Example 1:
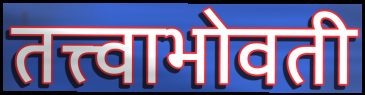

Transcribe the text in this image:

तत्त्वाभोवती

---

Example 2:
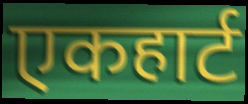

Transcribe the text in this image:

एकहार्ट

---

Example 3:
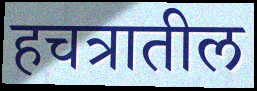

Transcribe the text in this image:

हचत्रातील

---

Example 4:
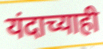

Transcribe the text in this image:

यंदाच्याही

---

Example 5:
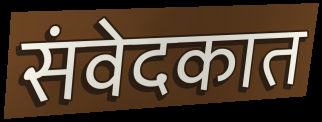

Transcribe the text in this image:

संवेदकात